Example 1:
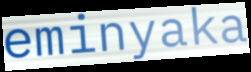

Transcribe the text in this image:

eminyaka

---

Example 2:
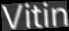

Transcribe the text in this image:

Vitin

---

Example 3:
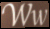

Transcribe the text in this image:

Ww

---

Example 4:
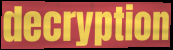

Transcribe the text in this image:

decryption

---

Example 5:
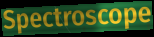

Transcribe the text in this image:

Spectroscope